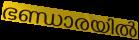
ഭണ്ഡാരയിൽ